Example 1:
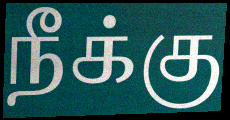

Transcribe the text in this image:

நீக்கு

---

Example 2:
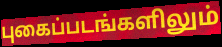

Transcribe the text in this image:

புகைப்படங்களிலும்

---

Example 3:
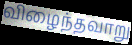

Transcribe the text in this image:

விழைந்தவாறு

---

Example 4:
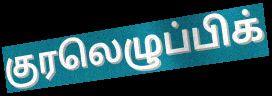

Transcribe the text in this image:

குரலெழுப்பிக்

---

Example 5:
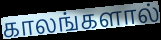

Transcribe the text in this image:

காலங்களால்